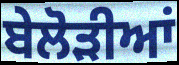
ਬੇਲੋੜੀਆਂ